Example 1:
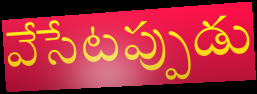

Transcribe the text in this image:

వేసేటప్పుడు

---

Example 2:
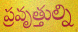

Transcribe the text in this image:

ప్రవృత్తుల్ని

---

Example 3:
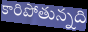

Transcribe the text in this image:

కారిపోతున్నది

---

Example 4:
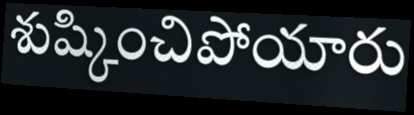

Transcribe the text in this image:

శుష్కించిపోయారు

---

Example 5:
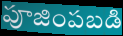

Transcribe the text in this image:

పూజింపబడి